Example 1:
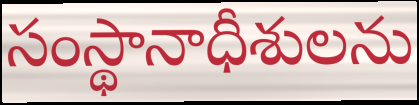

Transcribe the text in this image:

సంస్థానాధీశులను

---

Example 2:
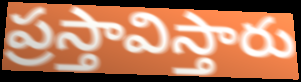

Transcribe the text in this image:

ప్రస్తావిస్తారు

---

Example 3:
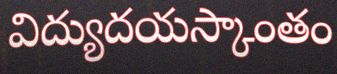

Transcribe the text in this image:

విద్యుదయస్కాంతం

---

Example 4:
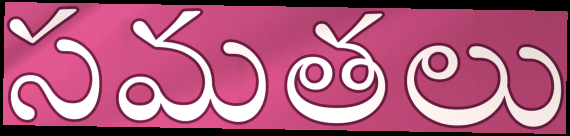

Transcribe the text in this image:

సమతలు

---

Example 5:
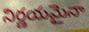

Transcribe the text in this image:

నిర్ణయమైనా